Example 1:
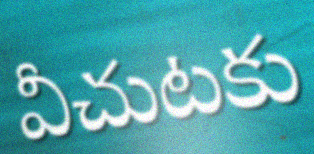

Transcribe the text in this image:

వీచుటకు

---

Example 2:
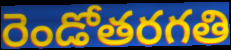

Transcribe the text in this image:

రెండోతరగతి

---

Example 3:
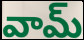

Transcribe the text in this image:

వామ్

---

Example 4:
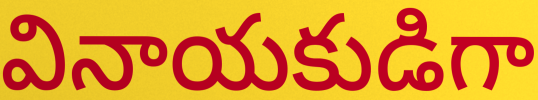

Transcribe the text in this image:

వినాయకుడిగా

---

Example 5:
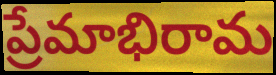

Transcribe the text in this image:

ప్రేమాభిరామ